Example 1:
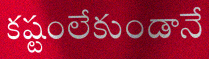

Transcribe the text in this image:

కష్టంలేకుండానే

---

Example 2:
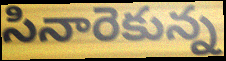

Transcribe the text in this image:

సినారెకున్న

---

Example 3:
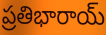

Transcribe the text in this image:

ప్రతిభారాయ్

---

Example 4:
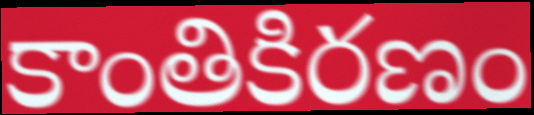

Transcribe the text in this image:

కాంతికిరణం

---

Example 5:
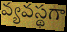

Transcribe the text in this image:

వ్యవస్థగా